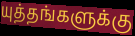
யுத்தங்களுக்கு